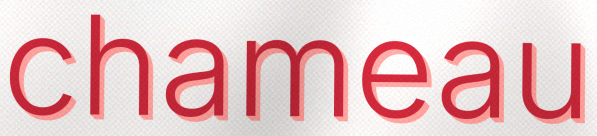
chameau